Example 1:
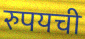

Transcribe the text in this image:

रुपयची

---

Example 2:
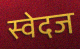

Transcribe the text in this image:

स्वेदज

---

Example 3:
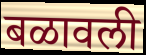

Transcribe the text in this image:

बळावली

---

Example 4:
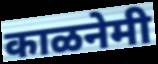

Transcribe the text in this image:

काळनेमी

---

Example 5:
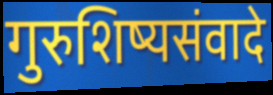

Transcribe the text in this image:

गुरुशिष्यसंवादे